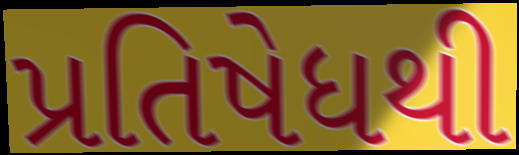
પ્રતિષેધથી